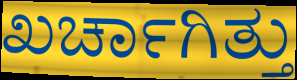
ಖರ್ಚಾಗಿತ್ತು